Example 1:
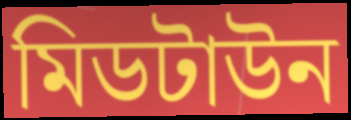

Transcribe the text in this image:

মিডটাউন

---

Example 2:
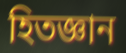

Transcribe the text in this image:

হিতজ্ঞান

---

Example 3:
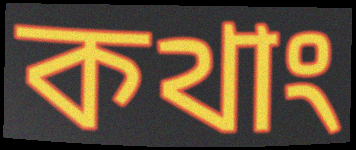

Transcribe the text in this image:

কথাং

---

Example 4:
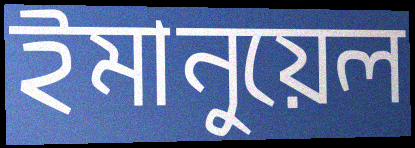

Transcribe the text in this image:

ইমানুয়েল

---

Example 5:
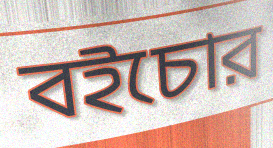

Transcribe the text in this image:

বইচোর